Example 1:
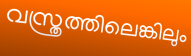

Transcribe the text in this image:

വസ്ത്രത്തിലെങ്കിലും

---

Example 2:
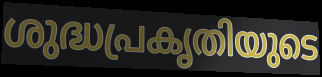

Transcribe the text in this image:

ശുദ്ധപ്രകൃതിയുടെ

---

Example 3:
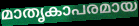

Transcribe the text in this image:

മാതൃകാപരമായ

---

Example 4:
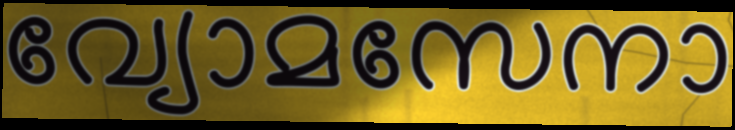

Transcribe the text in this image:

വ്യോമസേനാ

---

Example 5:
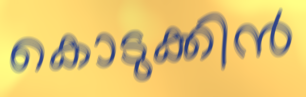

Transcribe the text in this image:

കൊടുക്കിൻ